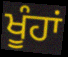
ਖੂੰਹਾਂ